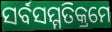
ସର୍ବସମ୍ମତିକ୍ରମେ